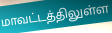
மாவட்டத்திலுள்ள